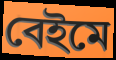
বেইমে